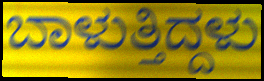
ಬಾಳುತ್ತಿದ್ದಳು